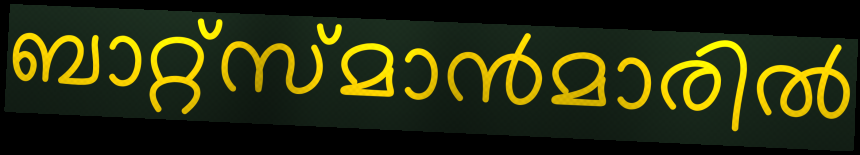
ബാറ്റ്സ്മാൻമാരിൽ